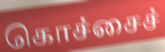
கொச்சைச்